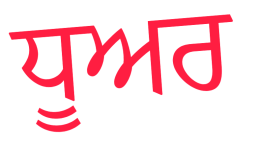
ਧੂਅਰ